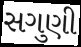
સગુણી